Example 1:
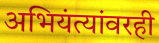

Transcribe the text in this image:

अभियंत्यांवरही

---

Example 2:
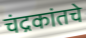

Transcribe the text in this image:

चंद्रकांतचे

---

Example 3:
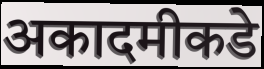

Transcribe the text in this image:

अकादमीकडे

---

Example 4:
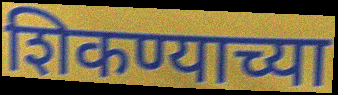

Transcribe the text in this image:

शिकण्याच्या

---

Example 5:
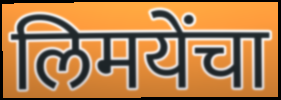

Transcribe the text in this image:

लिमयेंचा